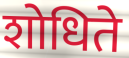
शोधिते